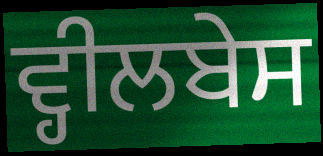
ਵ੍ਹੀਲਬੇਸ